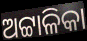
ଅଟ୍ଟାଳିକା